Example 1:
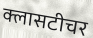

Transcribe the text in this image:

क्लासटीचर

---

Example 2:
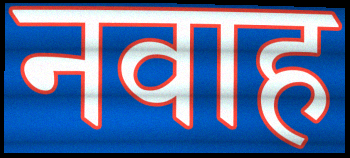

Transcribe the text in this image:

नवाह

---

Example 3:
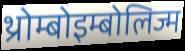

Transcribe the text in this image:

थ्रोम्बोइम्बोलिज्म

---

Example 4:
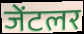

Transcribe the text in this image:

जेंटलर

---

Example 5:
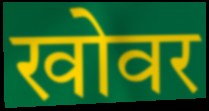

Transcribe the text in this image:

खोवर